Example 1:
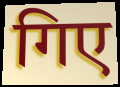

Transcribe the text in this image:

गिए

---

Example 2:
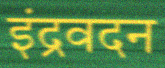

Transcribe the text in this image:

इंद्रवदन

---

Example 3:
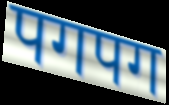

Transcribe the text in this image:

पगपग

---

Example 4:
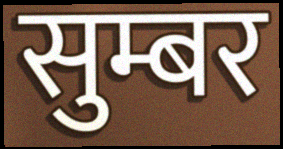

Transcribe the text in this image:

सुम्बर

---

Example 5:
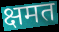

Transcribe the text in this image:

क्षमत